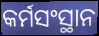
କର୍ମସଂସ୍ଥାନ